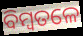
ବିମ୍ବତଳେ